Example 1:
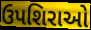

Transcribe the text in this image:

ઉપશિરાઓ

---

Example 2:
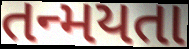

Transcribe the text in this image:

તન્મયતા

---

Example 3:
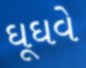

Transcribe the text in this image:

ઘૂઘવે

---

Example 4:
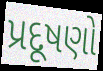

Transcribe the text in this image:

પ્રદૂષણો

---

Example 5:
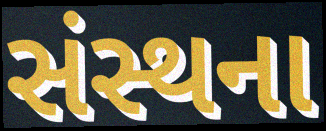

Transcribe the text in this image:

સંસ્થના